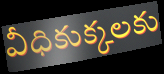
వీధికుక్కలకు